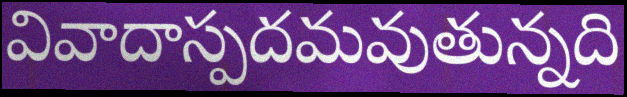
వివాదాస్పదమవుతున్నది